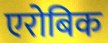
एरोबिक